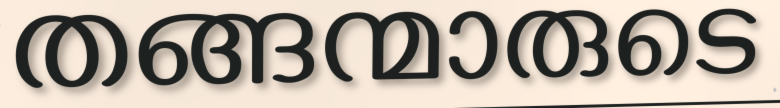
തങ്ങന്മാരുടെ